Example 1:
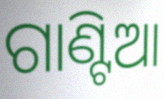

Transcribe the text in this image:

ଗାଣ୍ଟିଆ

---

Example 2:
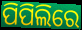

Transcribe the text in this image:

ପିପିଲିରେ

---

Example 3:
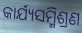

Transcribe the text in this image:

କାର୍ଯ୍ୟସମ୍ମିଶ୍ରଣ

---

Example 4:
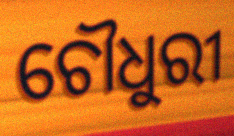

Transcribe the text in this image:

ଚୌଧୁରୀ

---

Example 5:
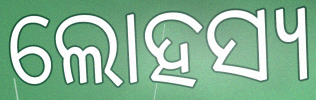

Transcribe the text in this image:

ଲୋହସ୍ୟ